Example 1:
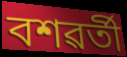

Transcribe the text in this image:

বশৱৰ্তী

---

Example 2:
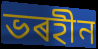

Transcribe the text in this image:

ভৰহীন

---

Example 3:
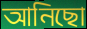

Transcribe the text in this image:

আনিছো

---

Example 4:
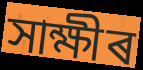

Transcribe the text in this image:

সাক্ষীৰ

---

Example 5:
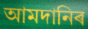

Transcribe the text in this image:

আমদানিৰ